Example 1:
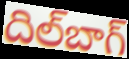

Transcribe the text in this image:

దిల్‌బాగ్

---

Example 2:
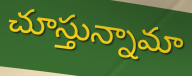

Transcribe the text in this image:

చూస్తున్నామా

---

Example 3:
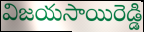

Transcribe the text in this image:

విజయసాయిరెడ్డి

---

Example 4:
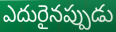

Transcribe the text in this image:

ఎదురైనప్పుడు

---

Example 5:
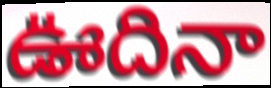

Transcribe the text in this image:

ఊదినా